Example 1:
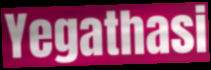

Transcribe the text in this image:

Yegathasi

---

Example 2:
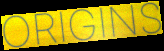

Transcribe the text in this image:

ORIGINS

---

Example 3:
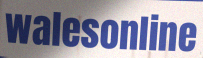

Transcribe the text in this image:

walesonline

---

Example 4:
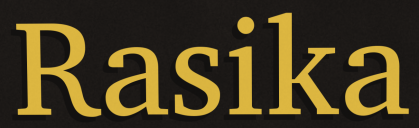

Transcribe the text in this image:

Rasika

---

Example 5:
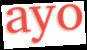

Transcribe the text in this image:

ayo